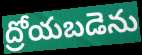
ద్రోయబడెను